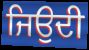
ਜਿਉਦੀ